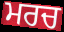
ਮਰਚ